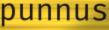
punnus